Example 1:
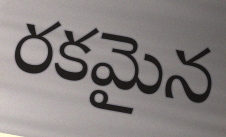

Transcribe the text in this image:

రకమైన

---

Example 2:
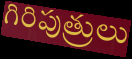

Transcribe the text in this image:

గిరిపుత్రులు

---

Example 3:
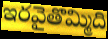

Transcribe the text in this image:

ఇరవైతొమ్మిది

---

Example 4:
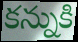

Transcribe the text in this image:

కన్నుకి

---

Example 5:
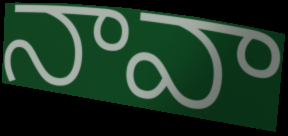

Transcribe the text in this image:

నావా